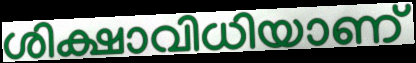
ശിക്ഷാവിധിയാണ്